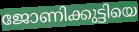
ജോണിക്കുട്ടിയെ